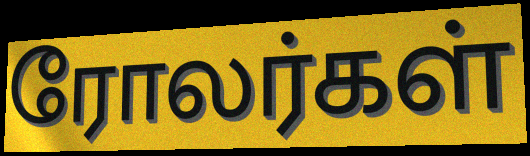
ரோலர்கள்